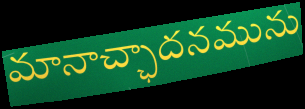
మానాచ్ఛాదనమును